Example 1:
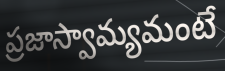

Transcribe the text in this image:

ప్రజాస్వామ్యమంటే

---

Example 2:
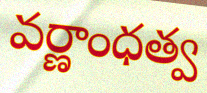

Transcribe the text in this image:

వర్ణాంధత్వ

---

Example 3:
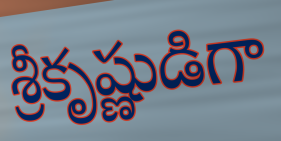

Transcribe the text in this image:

శ్రీకృష్ణుడిగా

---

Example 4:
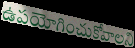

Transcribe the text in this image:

ఉపయోగించుకోవాలని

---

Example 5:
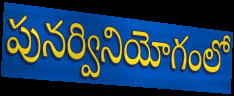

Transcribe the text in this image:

పునర్వినియోగంలో